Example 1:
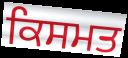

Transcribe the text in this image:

ਕਿਸਮਤ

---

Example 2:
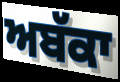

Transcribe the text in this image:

ਅਬੱਕਾ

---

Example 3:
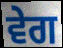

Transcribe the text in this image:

ਵੇਗ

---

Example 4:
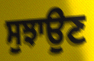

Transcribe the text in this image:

ਸੁਝਾਉਣ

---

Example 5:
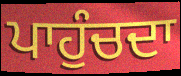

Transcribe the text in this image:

ਪਾਹੁੰਚਦਾ